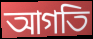
আগতি